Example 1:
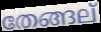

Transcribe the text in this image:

തേങ്ങല്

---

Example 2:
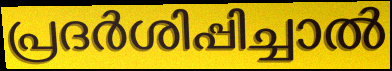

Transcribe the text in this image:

പ്രദർശിപ്പിച്ചാൽ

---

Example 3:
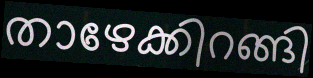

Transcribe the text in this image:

താഴേക്കിറങ്ങി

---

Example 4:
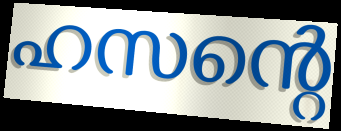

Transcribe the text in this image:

ഹസന്റെ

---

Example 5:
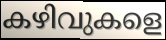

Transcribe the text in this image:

കഴിവുകളെ